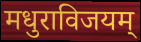
मधुराविजयम्